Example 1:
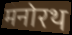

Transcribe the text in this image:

मनोरथ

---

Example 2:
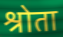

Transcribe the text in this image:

श्रोता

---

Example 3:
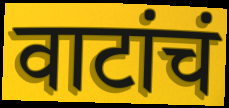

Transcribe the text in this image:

वाटांचं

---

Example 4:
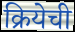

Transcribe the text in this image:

क्रियेची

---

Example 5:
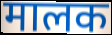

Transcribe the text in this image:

मालक